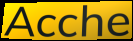
Acche